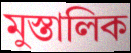
মুস্তালিক